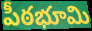
పీఠభూమి